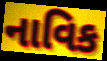
નાવિક